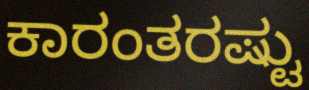
ಕಾರಂತರಷ್ಟು